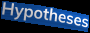
Hypotheses